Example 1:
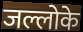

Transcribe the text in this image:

जल्लोके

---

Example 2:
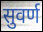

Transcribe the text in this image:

सुवर्ण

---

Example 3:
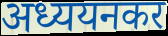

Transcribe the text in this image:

अध्ययनकर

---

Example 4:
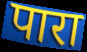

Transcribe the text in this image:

पारा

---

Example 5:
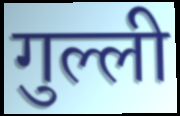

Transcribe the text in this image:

गुल्ली